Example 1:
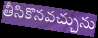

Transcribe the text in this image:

తీసికొనవచ్చును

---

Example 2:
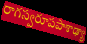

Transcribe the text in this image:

రాగస్వరూపపాశాఢ్యా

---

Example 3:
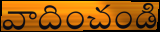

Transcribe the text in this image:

వాదించండి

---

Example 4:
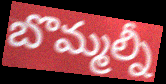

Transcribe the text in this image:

బొమ్మల్నీ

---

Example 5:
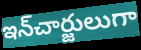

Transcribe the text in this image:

ఇన్‌చార్జులుగా